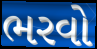
ભરવો